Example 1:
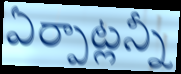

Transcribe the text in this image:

ఏర్పాట్లన్నీ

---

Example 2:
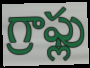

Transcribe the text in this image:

గ్రాఫ్లు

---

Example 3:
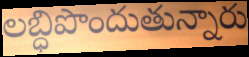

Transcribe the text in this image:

లబ్ధిపొందుతున్నారు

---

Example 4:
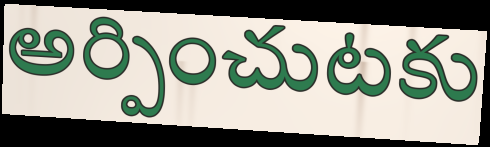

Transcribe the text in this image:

అర్పించుటకు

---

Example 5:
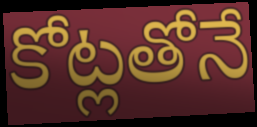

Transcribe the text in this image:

కోట్లతోనే